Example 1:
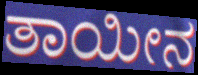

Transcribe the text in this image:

ತಾಯೀನ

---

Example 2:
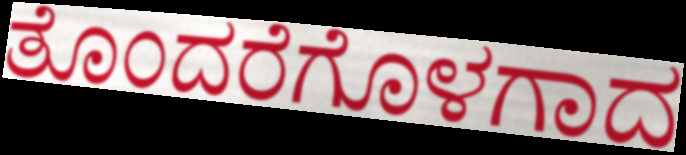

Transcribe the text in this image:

ತೊಂದರೆಗೊಳಗಾದ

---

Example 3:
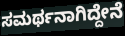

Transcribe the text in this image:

ಸಮರ್ಥನಾಗಿದ್ದೇನೆ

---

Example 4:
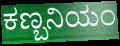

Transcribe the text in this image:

ಕಣ್ಬನಿಯಂ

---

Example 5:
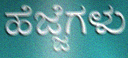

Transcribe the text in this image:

ಹೆಜ್ಜೆಗಳು